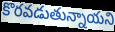
కొరవడుతున్నాయని